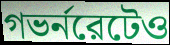
গভর্নরেটেও